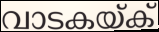
വാടകയ്ക്